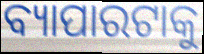
ବ୍ୟାପାରଟାକୁ